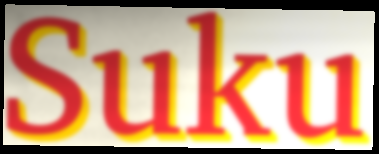
Suku